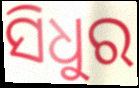
ସିଧୁର